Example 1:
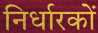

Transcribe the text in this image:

निर्धारकों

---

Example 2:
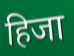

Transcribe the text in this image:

हिजा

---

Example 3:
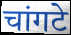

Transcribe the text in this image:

चांगटे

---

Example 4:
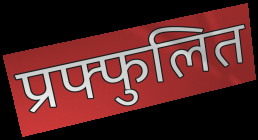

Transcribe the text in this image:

प्रफ्फुलित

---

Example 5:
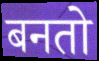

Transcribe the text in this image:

बनतो